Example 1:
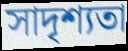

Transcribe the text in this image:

সাদৃশ্যতা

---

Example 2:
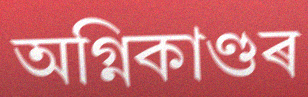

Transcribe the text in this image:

অগ্নিকাণ্ডৰ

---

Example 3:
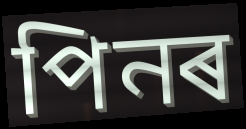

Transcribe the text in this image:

পিনৰ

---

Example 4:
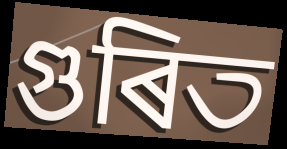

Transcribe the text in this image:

গুৰিত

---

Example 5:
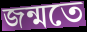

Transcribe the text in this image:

জন্মতে